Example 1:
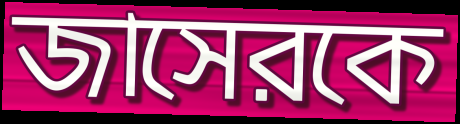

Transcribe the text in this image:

জাসেরকে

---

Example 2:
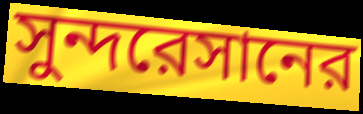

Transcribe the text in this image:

সুন্দরেসানের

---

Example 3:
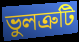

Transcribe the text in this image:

ভুলত্রুটি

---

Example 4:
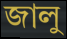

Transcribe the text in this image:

জালু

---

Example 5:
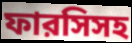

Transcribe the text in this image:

ফারসিসহ